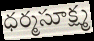
ధర్మసూక్ష్మ